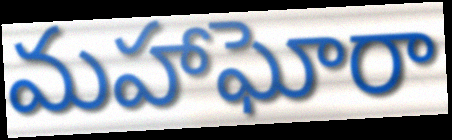
మహాఘోరా